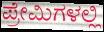
ಪ್ರೇಮಿಗಳಲ್ಲಿ